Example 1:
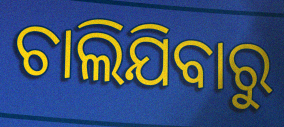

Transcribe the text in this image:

ଚାଲିଯିବାରୁ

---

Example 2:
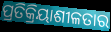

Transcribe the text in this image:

ପ୍ରତିକ୍ରିୟାଶୀଳତାର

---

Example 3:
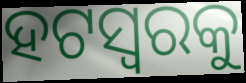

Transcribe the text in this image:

ହଟସ୍ଵରକୁ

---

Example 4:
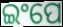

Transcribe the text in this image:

ଇଂପେ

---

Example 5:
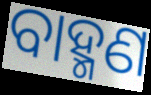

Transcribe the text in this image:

ବାହ୍ମଣ